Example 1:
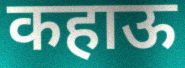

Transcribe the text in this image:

कहाऊ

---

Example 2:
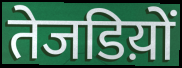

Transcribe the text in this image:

तेजडिय़ों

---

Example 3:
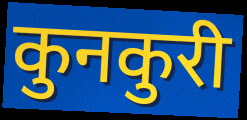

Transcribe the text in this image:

कुनकुरी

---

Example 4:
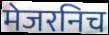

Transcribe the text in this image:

मेजरनिच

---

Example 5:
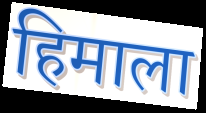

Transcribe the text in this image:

हिमाला